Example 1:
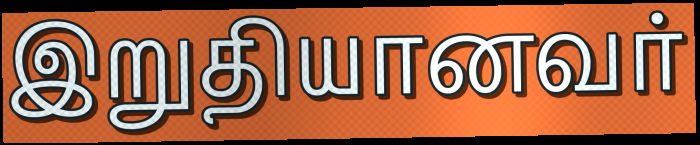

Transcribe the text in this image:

இறுதியானவர்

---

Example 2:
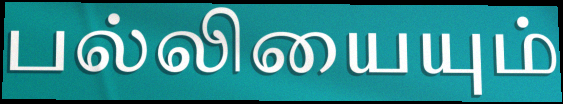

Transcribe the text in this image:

பல்லியையும்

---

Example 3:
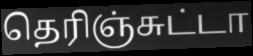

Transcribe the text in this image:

தெரிஞ்சுட்டா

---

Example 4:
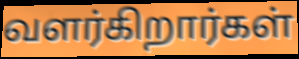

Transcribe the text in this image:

வளர்கிறார்கள்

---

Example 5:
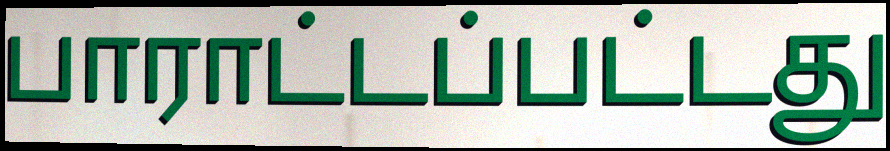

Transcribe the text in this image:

பாராட்டப்பட்டது